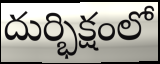
దుర్భిక్షంలో